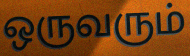
ஒருவரும்